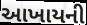
આખાયની